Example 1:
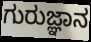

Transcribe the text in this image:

ಗುರುಜ್ಞಾನ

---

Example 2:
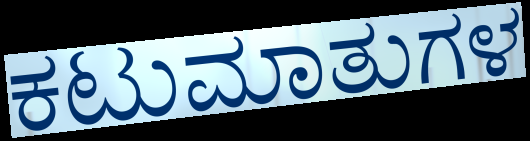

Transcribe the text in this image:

ಕಟುಮಾತುಗಳ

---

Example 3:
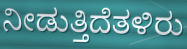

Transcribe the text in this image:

ನೀಡುತ್ತಿದೆತಳಿರು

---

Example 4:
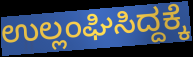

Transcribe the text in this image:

ಉಲ್ಲಂಘಿಸಿದ್ದಕ್ಕೆ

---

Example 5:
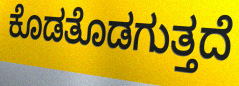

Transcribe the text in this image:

ಕೊಡತೊಡಗುತ್ತದೆ